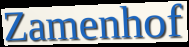
Zamenhof